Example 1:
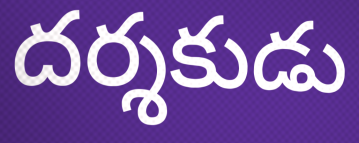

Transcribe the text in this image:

దర్శకుడు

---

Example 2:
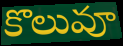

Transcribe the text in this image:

కొలువూ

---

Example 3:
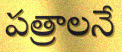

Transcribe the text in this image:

పత్రాలనే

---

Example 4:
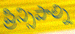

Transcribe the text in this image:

ప్రిన్సిపాల్ని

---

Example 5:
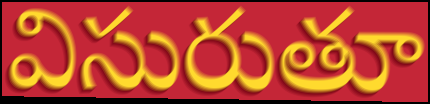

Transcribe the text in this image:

విసురుతూ